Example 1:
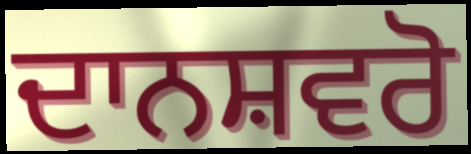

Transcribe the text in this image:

ਦਾਨਸ਼ਵਰੋ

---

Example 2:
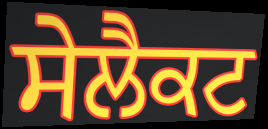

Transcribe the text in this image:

ਸੇਲੈਕਟ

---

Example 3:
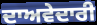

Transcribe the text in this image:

ਦਾਅਵੇਦਾਰੀ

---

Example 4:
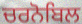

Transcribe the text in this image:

ਚਰਨੋਬਿਲ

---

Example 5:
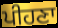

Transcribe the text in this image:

ਪੀਹਣਾ